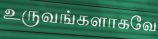
உருவங்களாகவே